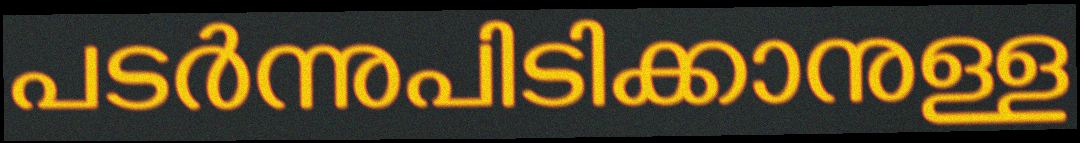
പടർന്നുപിടിക്കാനുള്ള